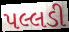
પલ્લડી